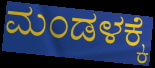
ಮಂಡಳಕ್ಕೆ